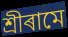
শ্ৰীৰামে